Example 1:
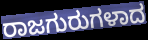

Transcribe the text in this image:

ರಾಜಗುರುಗಳಾದ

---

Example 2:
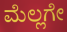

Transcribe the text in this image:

ಮೆಲ್ಲಗೇ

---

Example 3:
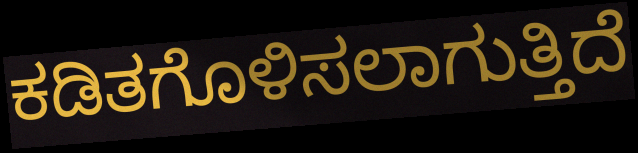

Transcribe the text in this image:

ಕಡಿತಗೊಳಿಸಲಾಗುತ್ತಿದೆ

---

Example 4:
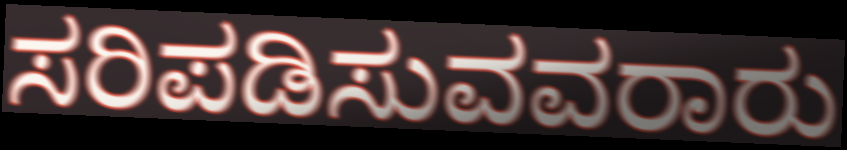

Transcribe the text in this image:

ಸರಿಪಡಿಸುವವರಾರು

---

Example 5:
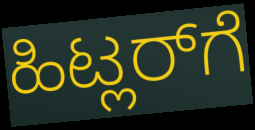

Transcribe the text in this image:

ಹಿಟ್ಲರ್‌ಗೆ